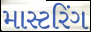
માસ્ટરિંગ